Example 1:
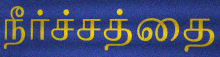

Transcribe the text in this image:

நீர்ச்சத்தை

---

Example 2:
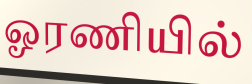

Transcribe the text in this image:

ஓரணியில்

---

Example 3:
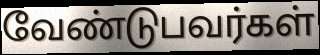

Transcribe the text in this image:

வேண்டுபவர்கள்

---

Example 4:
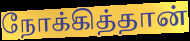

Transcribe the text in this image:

நோக்கித்தான்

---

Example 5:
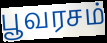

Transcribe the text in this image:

பூவரசம்